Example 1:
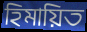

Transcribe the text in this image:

হিমায়িত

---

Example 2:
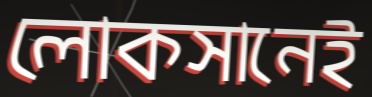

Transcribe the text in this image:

লোকসানেই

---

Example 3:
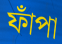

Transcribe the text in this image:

ফাঁপা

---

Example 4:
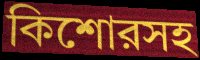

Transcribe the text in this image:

কিশোরসহ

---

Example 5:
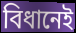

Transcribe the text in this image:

বিধানেই